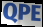
QPE